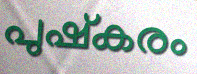
പുഷ്കരം